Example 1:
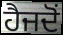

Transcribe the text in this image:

ਹੈਜਦੋਂ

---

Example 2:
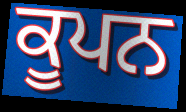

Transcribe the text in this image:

ਕੂਪਨ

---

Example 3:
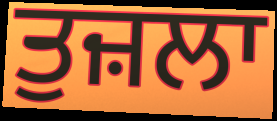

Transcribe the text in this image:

ਤੁਜ਼ਲਾ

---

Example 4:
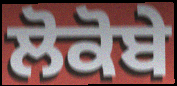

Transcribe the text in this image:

ਲੋਕੋਬੇ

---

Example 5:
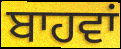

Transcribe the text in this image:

ਬਾਹਵਾਂ